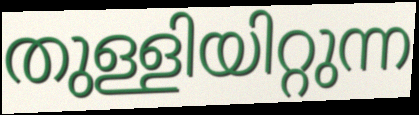
തുള്ളിയിറ്റുന്ന